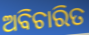
ଅବିଚାରିତ